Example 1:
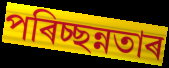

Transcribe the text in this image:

পৰিচ্ছন্নতাৰ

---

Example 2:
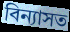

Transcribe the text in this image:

বিন্যাসত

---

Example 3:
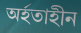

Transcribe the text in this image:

অৰ্হতাহীন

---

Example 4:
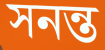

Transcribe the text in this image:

সনন্ত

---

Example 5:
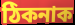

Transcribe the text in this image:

ঠিকনাক